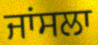
ਜਾਂਸਲਾ